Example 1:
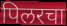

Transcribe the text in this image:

पिलरचा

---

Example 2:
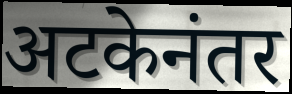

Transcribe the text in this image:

अटकेनंतर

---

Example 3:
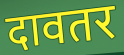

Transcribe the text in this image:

दावतर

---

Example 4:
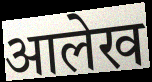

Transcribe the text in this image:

आलेख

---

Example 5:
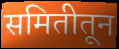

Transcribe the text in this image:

समितीतून